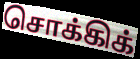
சொக்கிக்